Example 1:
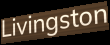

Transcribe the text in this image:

Livingston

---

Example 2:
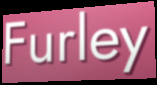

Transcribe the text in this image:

Furley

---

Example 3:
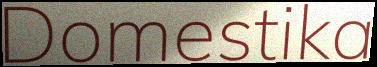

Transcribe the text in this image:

Domestika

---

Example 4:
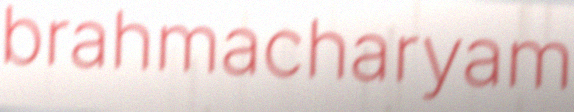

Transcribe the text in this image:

brahmacharyam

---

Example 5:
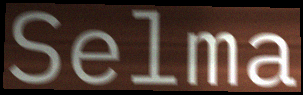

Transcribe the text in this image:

Selma